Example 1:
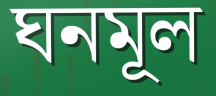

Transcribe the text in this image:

ঘনমূল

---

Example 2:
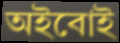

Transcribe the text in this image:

অইবোই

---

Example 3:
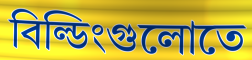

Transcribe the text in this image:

বিল্ডিংগুলোতে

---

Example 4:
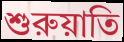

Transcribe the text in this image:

শুরুয়াতি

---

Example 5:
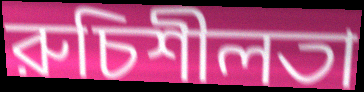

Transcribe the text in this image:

রুচিশীলতা